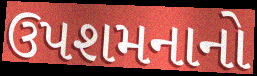
ઉપશમનાનો